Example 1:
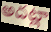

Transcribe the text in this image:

అదట్లా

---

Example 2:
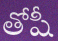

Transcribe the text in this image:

తోషీ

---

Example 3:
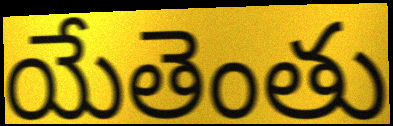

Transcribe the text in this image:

యేతెంతు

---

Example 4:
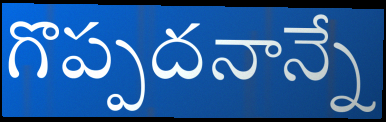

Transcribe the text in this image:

గొప్పదనాన్నే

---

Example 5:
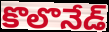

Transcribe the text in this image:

కొలొనేడ్